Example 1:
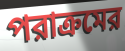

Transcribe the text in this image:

পরাক্রমের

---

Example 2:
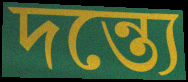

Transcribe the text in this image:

দন্ত্যে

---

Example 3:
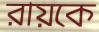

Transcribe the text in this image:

রায়কে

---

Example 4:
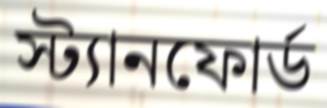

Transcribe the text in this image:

স্ট্যানফোর্ড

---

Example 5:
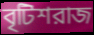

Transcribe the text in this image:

বৃটিশরাজ